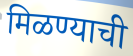
मिळण्याची